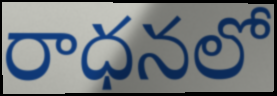
రాధనలో